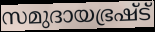
സമുദായഭ്രഷ്ട്